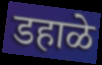
डहाळे